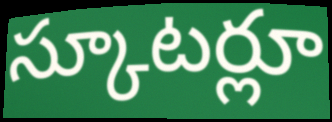
స్కూటర్లూ